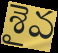
శైవ